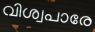
വിശ്വപാരേ